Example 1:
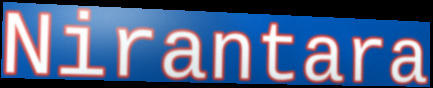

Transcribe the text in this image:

Nirantara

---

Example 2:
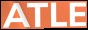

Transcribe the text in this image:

ATLE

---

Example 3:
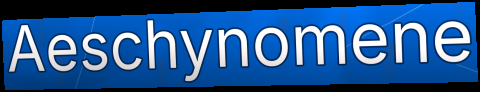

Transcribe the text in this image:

Aeschynomene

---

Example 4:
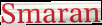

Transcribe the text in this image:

Smaran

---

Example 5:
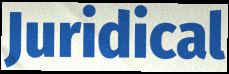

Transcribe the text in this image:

Juridical